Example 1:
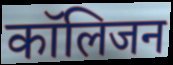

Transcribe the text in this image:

कॉलिजन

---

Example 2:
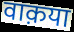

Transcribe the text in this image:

वाक़या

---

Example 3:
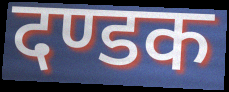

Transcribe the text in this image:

दण्डक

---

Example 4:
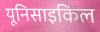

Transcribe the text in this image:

यूनिसाइकिल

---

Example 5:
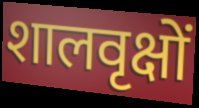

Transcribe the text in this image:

शालवृक्षों